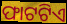
ଫାଟଟିଏ